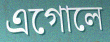
এগোলে